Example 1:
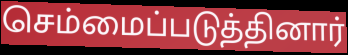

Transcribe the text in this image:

செம்மைப்படுத்தினார்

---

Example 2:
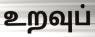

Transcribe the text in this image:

உறவுப்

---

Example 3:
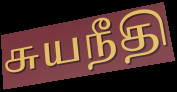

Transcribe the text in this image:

சுயநீதி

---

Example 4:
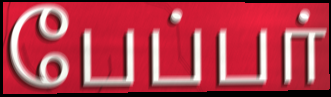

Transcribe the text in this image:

பேப்பர்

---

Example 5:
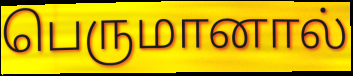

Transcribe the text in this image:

பெருமானால்